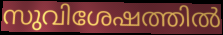
സുവിശേഷത്തിൽ